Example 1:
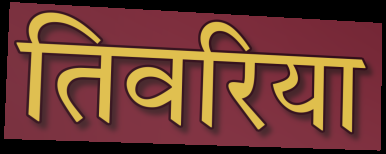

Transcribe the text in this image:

तिवरिया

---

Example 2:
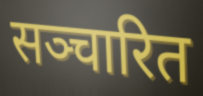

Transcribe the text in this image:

सञ्चारित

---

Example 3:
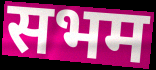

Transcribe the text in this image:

सभम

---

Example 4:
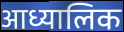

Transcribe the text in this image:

आध्यालिक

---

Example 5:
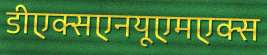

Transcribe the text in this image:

डीएक्सएनयूएमएक्स